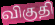
விகுதி